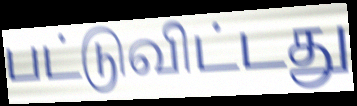
பட்டுவிட்டது